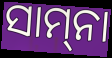
ସାମ୍‌ନା